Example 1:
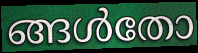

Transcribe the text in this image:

ങ്ങൾതോ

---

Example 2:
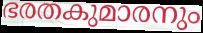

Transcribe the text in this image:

ഭരതകുമാരനും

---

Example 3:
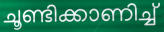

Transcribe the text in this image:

ചൂണ്ടിക്കാണിച്ച്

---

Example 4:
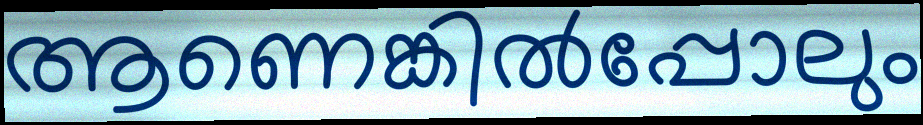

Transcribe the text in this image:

ആണെങ്കിൽപ്പോലും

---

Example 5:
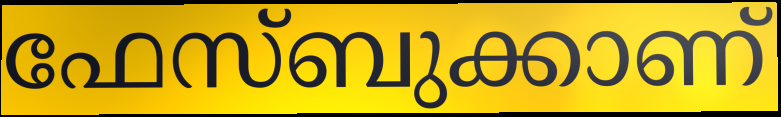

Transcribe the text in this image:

ഫേസ്ബുക്കാണ്